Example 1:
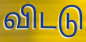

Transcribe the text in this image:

விடடு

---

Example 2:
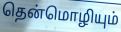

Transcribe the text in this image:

தென்மொழியும்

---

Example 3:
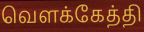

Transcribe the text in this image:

வெளக்கேத்தி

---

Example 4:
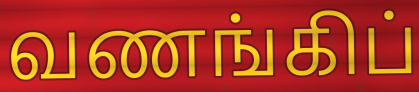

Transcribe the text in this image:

வணங்கிப்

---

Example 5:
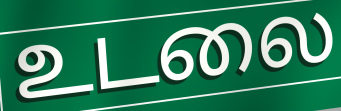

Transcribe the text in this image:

உடலை